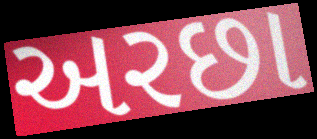
અરછા